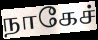
நாகேச்